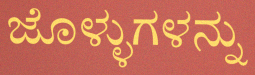
ಜೊಳ್ಳುಗಳನ್ನು